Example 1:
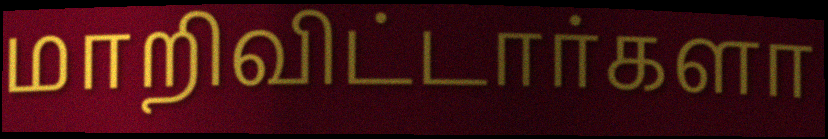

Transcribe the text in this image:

மாறிவிட்டார்களா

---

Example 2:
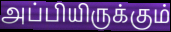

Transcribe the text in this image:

அப்பியிருக்கும்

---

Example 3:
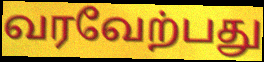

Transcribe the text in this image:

வரவேற்பது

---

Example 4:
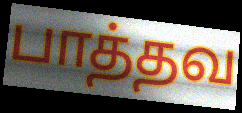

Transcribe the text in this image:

பாத்தவ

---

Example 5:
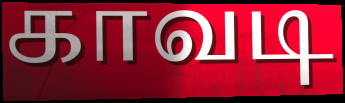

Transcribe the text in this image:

காவடி